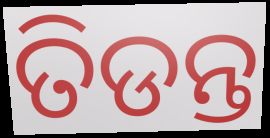
ତିଡନ୍ତ